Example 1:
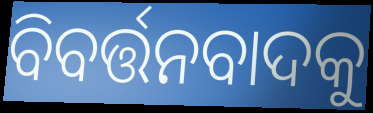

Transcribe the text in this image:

ବିବର୍ତ୍ତନବାଦକୁ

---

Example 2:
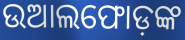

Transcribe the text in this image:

ଉଆଲଫୋଡ଼ଙ୍କ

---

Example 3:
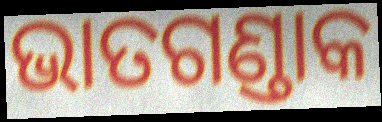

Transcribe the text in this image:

ଭାତଗଣ୍ଡାକ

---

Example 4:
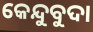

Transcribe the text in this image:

କେନ୍ଦୁବୁଦା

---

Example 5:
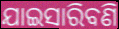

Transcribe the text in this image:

ଯାଇସାରିବଣି